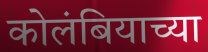
कोलंबियाच्या